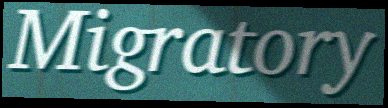
Migratory